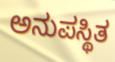
ಅನುಪಸ್ಥಿತ